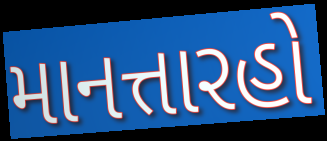
માનત્તારહો